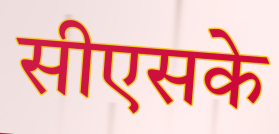
सीएसके